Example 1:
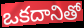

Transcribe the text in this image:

ఒకదానితో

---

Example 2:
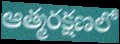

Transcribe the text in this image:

ఆత్మరక్షణలో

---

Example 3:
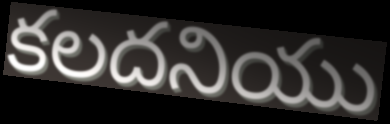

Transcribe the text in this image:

కలదనియు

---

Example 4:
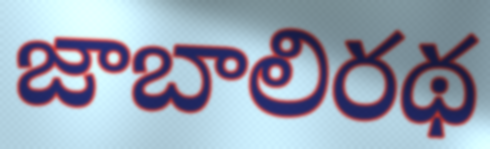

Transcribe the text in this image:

జాబాలిరథ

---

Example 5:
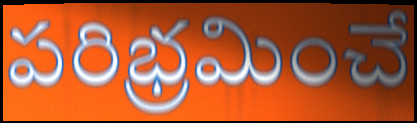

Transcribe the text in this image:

పరిభ్రమించే